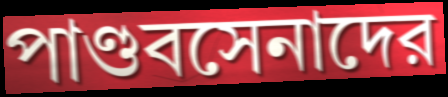
পাণ্ডবসেনাদের